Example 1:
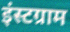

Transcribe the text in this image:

इंस्टग्राम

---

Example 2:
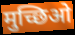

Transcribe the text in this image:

मुच्छिओ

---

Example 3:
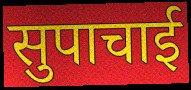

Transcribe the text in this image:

सुपाचाई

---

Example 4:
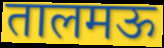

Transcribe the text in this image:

तालमऊ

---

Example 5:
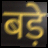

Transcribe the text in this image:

बड़े